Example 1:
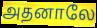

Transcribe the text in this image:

அதனாலே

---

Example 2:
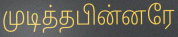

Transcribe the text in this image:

முடித்தபின்னரே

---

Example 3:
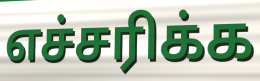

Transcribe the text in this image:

எச்சரிக்க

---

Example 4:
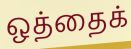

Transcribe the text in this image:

ஒத்தைக்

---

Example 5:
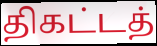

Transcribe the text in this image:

திகட்டத்